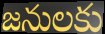
జనులకు